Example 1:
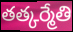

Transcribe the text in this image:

తత్కర్మేతి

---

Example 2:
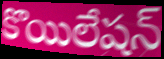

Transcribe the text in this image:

కొయిలేషన్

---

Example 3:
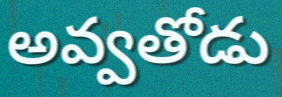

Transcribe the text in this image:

అవ్వతోడు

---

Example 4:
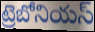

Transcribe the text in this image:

ట్రెబోనియస్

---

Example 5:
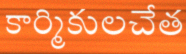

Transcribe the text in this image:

కార్మికులచేత